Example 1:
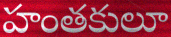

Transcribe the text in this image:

హంతకులూ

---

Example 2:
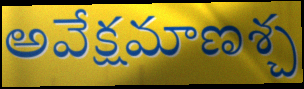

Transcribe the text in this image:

అవేక్షమాణశ్చ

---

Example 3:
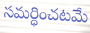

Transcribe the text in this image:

సమర్ధించటమే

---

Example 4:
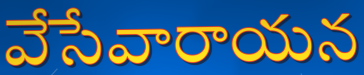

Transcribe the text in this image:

వేసేవారాయన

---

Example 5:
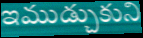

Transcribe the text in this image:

ఇముడ్చుకుని